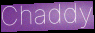
Chaddy